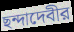
ছন্দাদেবীর